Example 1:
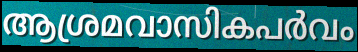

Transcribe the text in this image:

ആശ്രമവാസികപർവം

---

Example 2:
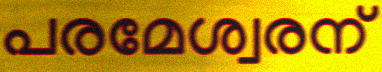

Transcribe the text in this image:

പരമേശ്വരന്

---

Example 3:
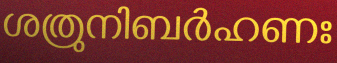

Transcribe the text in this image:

ശത്രുനിബർഹണഃ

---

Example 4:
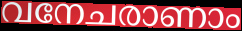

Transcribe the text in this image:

വനേചരാണാം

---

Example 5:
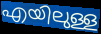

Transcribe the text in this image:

എയിലുള്ള